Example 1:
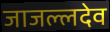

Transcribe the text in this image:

जाजल्लदेव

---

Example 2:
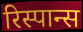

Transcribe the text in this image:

रिस्पान्स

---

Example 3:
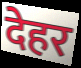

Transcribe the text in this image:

देहर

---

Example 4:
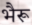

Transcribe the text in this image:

भैरू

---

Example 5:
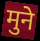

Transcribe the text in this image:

मुने